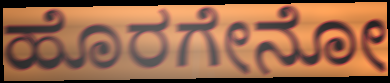
ಹೊರಗೇನೋ